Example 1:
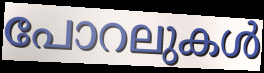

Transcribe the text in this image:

പോറലുകൾ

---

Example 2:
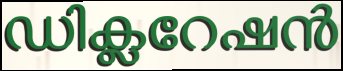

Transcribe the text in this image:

ഡിക്ലറേഷൻ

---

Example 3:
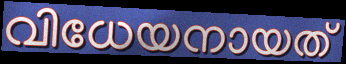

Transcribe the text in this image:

വിധേയനായത്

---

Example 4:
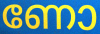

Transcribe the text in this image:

ണോ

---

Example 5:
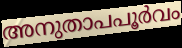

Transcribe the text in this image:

അനുതാപപൂർവം